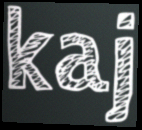
kaj